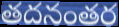
తదనంతర